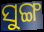
ସୁଙ୍ଗ